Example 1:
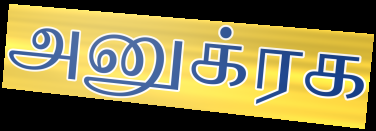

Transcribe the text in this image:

அனுக்ரக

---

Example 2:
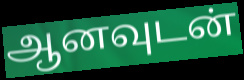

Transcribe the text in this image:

ஆனவுடன்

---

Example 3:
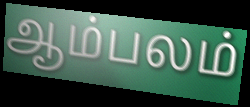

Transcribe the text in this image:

ஆம்பலம்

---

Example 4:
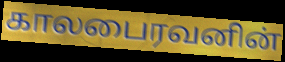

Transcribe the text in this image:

காலபைரவனின்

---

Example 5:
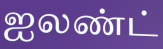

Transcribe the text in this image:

ஐலண்ட்